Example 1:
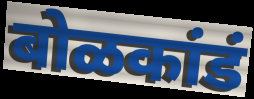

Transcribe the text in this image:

बोळकांडं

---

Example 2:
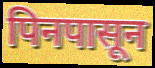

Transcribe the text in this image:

पिनपासून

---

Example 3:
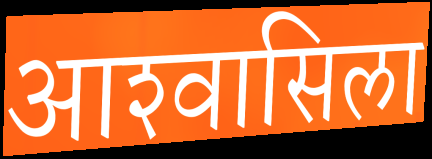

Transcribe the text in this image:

आश्वासिला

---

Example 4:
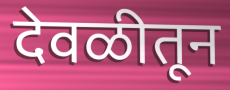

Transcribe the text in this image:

देवळीतून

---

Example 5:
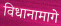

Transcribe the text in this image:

विधानामागे